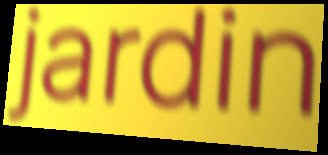
jardin